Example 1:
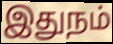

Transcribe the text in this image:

இதுநம்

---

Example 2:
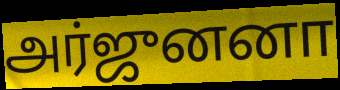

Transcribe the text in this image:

அர்ஜுனனா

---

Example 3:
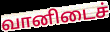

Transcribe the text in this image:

வானிடைச்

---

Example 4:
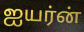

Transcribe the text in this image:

ஐயர்ன்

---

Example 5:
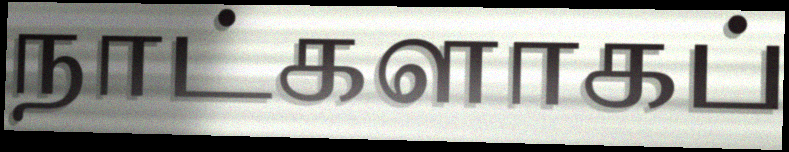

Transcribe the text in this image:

நாட்களாகப்